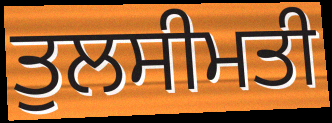
ਤੁਲਸੀਮਤੀ